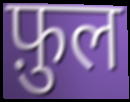
फ़ुल